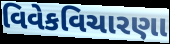
વિવેકવિચારણા